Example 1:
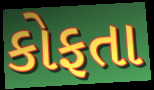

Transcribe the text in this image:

કોફતા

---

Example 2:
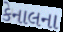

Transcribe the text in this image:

કેનાલના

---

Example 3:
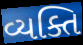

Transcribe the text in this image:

વ્યક્તિ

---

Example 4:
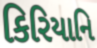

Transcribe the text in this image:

કિરિયાનિ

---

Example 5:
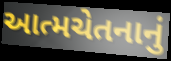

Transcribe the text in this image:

આત્મચેતનાનું